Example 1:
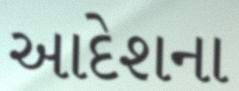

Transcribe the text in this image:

આદેશના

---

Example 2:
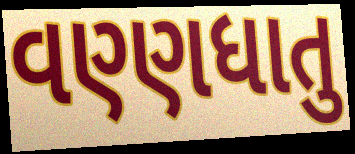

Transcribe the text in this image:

વણ્ણધાતુ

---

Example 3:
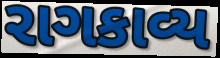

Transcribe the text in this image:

રાગકાવ્ય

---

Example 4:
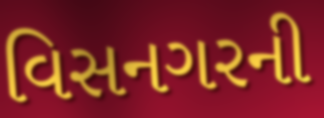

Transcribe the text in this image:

વિસનગરની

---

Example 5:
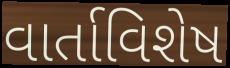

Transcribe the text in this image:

વાર્તાવિશેષ